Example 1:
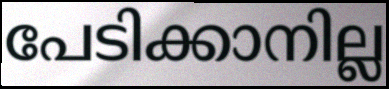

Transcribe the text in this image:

പേടിക്കാനില്ല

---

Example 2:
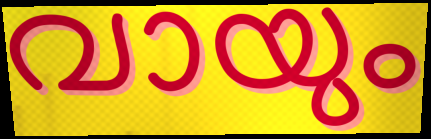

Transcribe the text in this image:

വായും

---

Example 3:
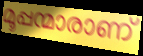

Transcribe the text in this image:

മൂപ്പന്മാരാണ്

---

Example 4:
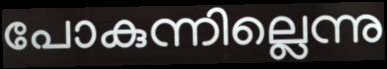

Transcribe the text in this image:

പോകുന്നില്ലെന്നു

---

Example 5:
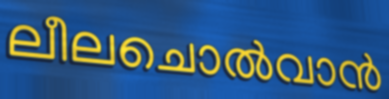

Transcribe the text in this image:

ലീലചൊൽവാൻ